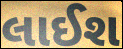
લાઈશ